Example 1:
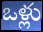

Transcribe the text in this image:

ఒళ్లు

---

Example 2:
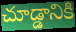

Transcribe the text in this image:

చూడ్డానికి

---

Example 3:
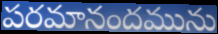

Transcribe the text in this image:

పరమానందమును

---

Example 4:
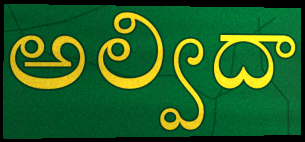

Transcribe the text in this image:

అల్విదా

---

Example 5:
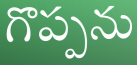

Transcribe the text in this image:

గొప్పను